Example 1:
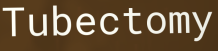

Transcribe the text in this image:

Tubectomy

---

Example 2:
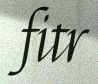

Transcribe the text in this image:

fitr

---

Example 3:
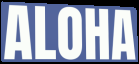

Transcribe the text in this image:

ALOHA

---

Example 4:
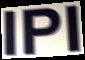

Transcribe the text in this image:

IPI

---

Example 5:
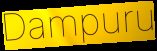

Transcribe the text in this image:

Dampuru